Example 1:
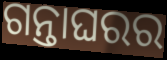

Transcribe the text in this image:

ଗନ୍ତାଘରର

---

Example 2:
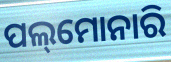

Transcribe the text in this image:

ପଲ୍‌ମୋନାରି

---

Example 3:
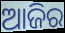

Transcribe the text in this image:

ଆଜିର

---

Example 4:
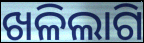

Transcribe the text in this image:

ଖଳିଲାଗି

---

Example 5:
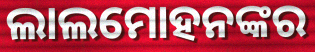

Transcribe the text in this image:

ଲାଲମୋହନଙ୍କର